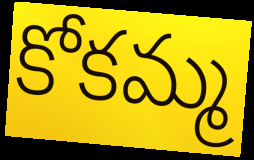
కోకమ్మ